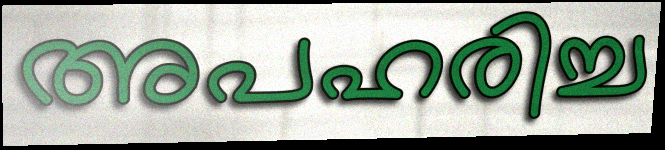
അപഹരിച്ച